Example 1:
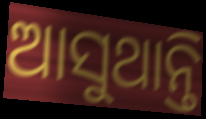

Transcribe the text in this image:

ଆସୁଥାନ୍ତି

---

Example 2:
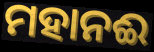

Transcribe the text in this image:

ମହାନଈ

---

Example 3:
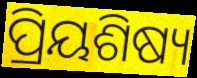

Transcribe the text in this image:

ପ୍ରିୟଶିଷ୍ୟ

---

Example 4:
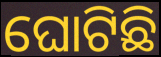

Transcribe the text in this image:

ଘୋଟିଛି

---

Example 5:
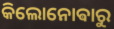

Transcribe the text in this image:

କିଲୋନୋଵାରୁ